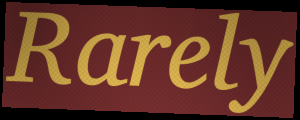
Rarely